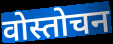
वोस्तोचन